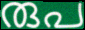
രുപ